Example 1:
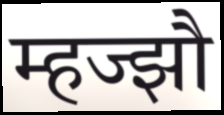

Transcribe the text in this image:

म्हज्झौ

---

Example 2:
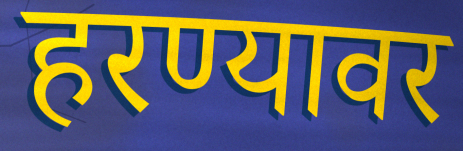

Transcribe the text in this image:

हरण्यावर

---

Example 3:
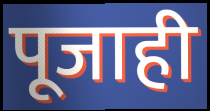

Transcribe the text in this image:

पूजाही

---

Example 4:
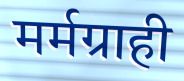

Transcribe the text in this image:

मर्मग्राही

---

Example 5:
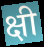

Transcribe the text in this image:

क्षी